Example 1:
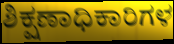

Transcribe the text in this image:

ಶಿಕ್ಷಣಾಧಿಕಾರಿಗಳ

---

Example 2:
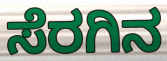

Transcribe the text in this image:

ಸೆರಗಿನ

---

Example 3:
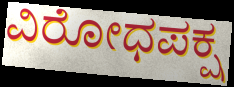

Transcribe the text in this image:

ವಿರೋಧಪಕ್ಷ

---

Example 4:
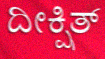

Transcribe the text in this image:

ದೀಕ್ಷಿತ್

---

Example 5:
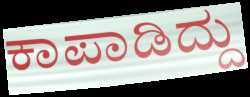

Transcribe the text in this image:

ಕಾಪಾಡಿದ್ದು